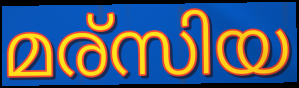
മര്സിയ